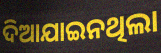
ଦିଆଯାଇନଥିଲା